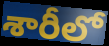
శారీలో